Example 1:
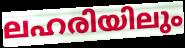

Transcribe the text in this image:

ലഹരിയിലും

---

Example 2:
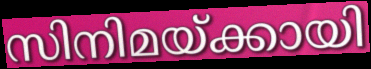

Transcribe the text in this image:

സിനിമയ്ക്കായി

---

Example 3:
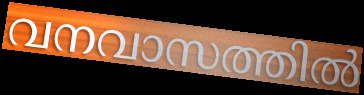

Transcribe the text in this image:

വനവാസത്തിൽ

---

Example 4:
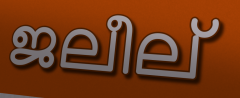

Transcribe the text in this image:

ജലീല്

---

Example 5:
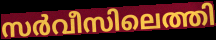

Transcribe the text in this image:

സർവീസിലെത്തി